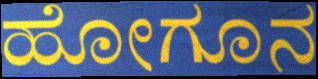
ಹೋಗೂನ